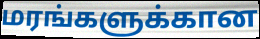
மரங்களுக்கான